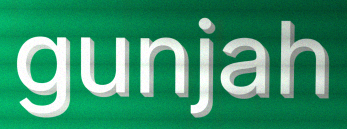
gunjah